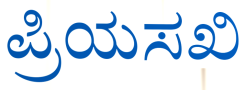
ಪ್ರಿಯಸಖಿ